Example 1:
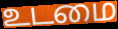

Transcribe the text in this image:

உடமை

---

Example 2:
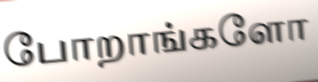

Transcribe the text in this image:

போறாங்களோ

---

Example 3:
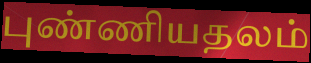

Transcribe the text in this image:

புண்ணியதலம்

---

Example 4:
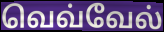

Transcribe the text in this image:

வெவ்வேல்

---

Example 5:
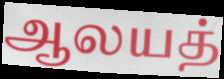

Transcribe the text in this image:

ஆலயத்